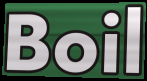
Boil